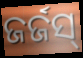
ଜର୍ଜସ୍